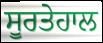
ਸੂਰਤੇਹਾਲ